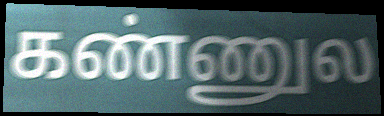
கண்ணுல